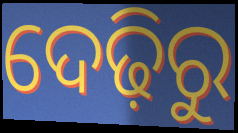
ଦେଢ଼ିରୁ